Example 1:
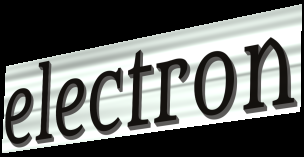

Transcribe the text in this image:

electron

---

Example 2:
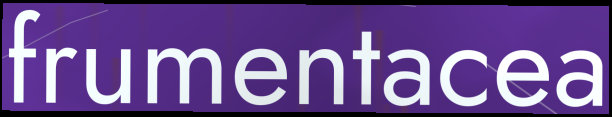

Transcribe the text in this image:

frumentacea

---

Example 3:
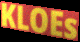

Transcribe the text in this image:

KLOEs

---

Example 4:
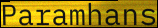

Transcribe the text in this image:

Paramhans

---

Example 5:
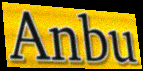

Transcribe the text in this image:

Anbu